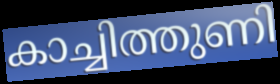
കാച്ചിത്തുണി